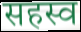
सहस्व